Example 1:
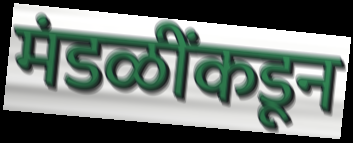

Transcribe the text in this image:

मंडळींकडून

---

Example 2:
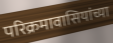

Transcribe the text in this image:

परिक्रमावासियांच्या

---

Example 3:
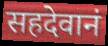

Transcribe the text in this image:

सहदेवानं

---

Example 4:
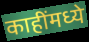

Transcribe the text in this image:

काहींमध्ये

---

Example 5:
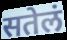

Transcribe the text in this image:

सतेलं